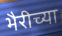
भैरीच्या